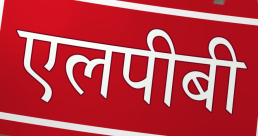
एलपीबी